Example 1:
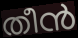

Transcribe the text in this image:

തീൻ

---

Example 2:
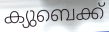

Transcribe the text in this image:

ക്യുബെക്ക്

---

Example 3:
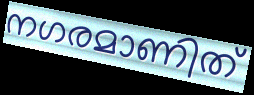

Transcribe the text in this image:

നഗരമാണിത്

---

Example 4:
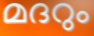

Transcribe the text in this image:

മദറും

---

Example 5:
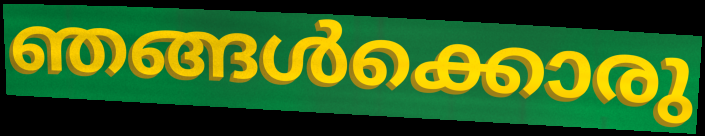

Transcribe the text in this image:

ഞങ്ങൾക്കൊരു